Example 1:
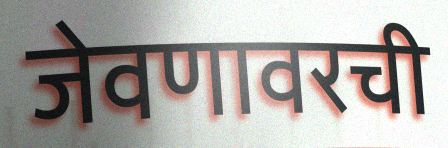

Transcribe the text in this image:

जेवणावरची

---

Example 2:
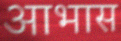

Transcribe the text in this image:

आभास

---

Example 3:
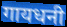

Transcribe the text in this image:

गायधनी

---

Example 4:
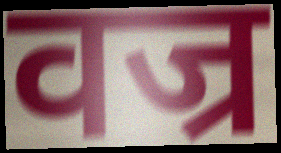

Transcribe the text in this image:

वज्र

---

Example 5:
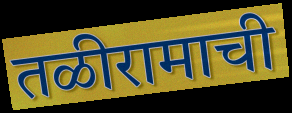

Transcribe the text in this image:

तळीरामाची